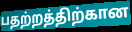
பதற்றத்திற்கான